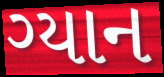
ગ્યાન